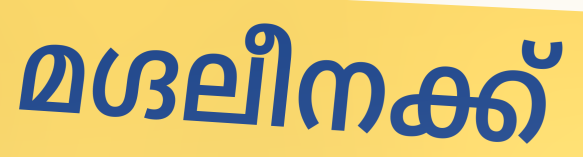
മഗ്ദലീനക്ക്